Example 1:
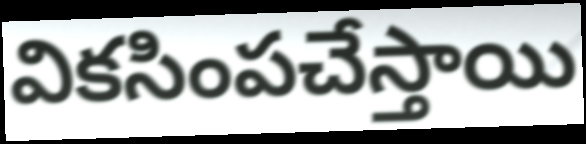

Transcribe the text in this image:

వికసింపచేస్తాయి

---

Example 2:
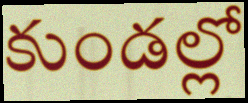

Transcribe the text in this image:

కుండల్లో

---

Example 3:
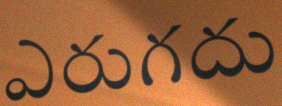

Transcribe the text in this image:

ఎరుగదు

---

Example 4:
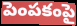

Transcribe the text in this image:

పెంపకంపై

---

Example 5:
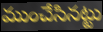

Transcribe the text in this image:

ముంచేసినట్టు